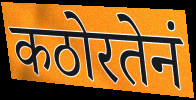
कठोरतेनं